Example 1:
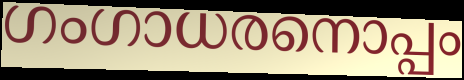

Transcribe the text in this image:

ഗംഗാധരനൊപ്പം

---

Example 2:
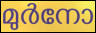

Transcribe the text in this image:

മുർനോ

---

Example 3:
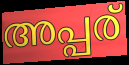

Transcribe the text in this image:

അപ്പര്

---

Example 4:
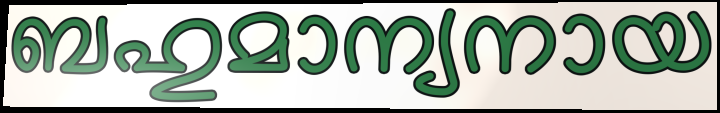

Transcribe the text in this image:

ബഹുമാന്യനായ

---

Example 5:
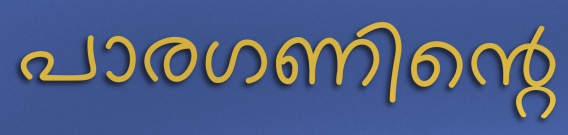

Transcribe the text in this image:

പാരഗണിന്റെ